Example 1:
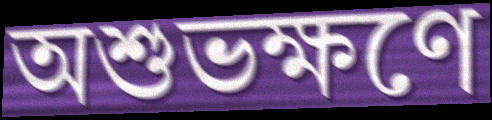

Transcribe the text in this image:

অশুভক্ষণে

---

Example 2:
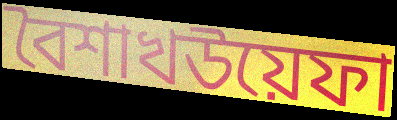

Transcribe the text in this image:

বৈশাখউয়েফা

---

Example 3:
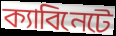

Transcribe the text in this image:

ক্যাবিনেটে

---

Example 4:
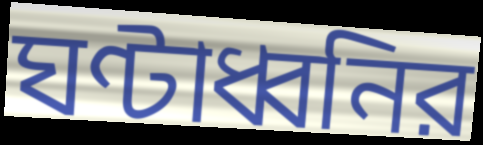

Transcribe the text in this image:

ঘণ্টাধ্বনির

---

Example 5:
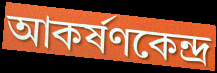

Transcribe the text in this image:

আকর্ষণকেন্দ্র